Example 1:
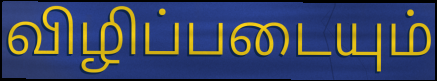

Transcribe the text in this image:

விழிப்படையும்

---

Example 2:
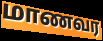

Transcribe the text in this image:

மாணவர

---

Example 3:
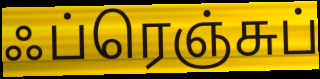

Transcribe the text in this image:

ஃப்ரெஞ்சுப்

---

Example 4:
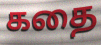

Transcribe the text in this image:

கதை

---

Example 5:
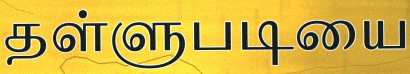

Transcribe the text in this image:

தள்ளுபடியை